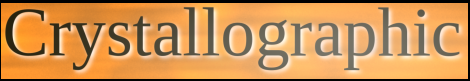
Crystallographic